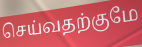
செய்வதற்குமே